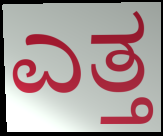
ಎತ್ತ